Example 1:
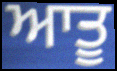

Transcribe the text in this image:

ਆਤੂ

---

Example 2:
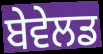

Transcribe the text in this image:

ਬੇਵੇਲਡ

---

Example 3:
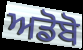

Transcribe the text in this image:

ਅਡੋਬੋ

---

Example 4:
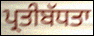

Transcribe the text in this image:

ਪ੍ਰਤੀਬੱਧਤਾ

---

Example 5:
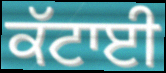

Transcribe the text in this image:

ਕੱਟਾਈ